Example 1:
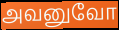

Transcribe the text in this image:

அவனுவோ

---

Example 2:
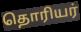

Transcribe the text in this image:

தொரியர்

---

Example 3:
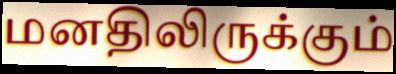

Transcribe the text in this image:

மனதிலிருக்கும்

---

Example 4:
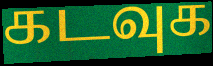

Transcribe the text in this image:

கடவுக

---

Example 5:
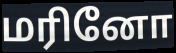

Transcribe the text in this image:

மரினோ